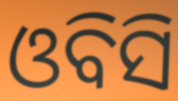
ଓବିସି